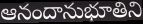
ఆనందానుభూతిని